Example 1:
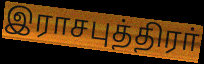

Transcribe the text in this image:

இராசபுத்திரர்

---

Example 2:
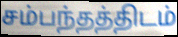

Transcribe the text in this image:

சம்பந்தத்திடம்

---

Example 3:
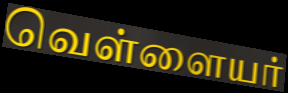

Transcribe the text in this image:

வெள்ளையர்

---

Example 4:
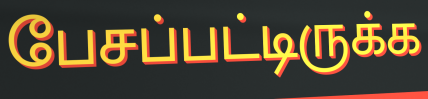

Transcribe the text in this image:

பேசப்பட்டிருக்க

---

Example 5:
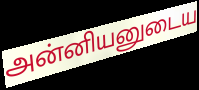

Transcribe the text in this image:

அன்னியனுடைய